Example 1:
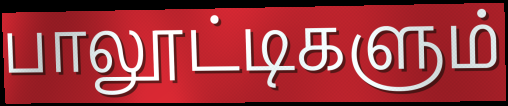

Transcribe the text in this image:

பாலூட்டிகளும்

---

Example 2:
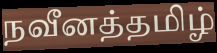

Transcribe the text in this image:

நவீனத்தமிழ்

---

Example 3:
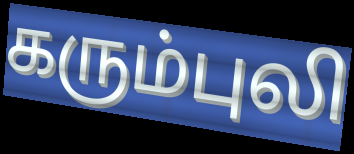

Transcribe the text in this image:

கரும்புலி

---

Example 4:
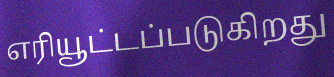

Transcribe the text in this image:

எரியூட்டப்படுகிறது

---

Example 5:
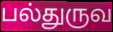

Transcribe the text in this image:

பல்துருவ